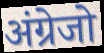
अंग्रेजो